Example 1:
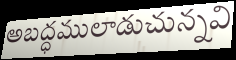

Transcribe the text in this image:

అబద్ధములాడుచున్నవి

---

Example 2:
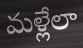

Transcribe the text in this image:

మళ్లేలా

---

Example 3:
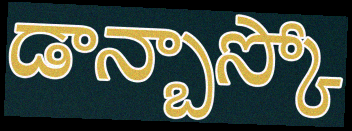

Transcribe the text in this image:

డాన్బాస్కో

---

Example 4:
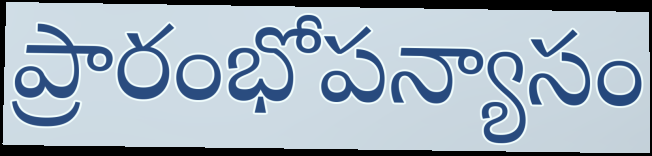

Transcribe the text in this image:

ప్రారంభోపన్యాసం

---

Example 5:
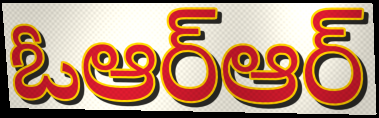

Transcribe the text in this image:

ఓఆర్ఆర్